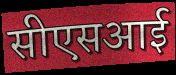
सीएसआई